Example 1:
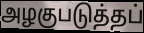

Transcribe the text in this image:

அழகுபடுத்தப்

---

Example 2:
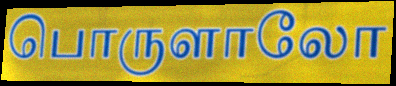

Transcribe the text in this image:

பொருளாலோ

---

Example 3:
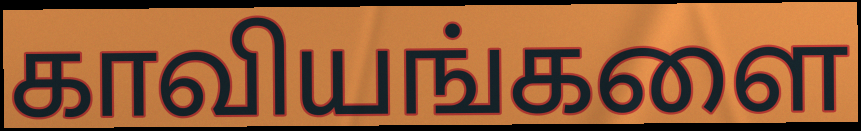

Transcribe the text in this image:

காவியங்களை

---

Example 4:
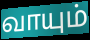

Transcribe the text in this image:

வாயும்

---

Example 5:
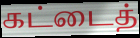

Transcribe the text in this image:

கட்டைத்